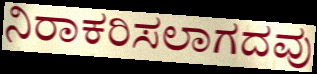
ನಿರಾಕರಿಸಲಾಗದವು